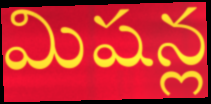
మిషన్ల